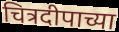
चित्रदीपाच्या